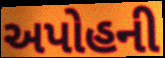
અપોહની